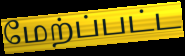
மேற்ப்பட்ட